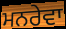
ਮਨਰੇਵਾ